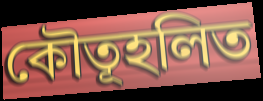
কৌতূহলিত